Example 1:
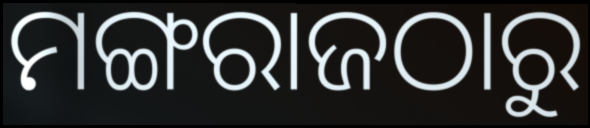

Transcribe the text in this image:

ମଙ୍ଗରାଜଠାରୁ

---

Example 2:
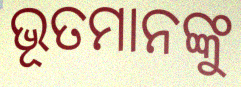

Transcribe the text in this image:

ଭୂତମାନଙ୍କୁ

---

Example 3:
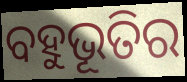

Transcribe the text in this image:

ବହୁଭୂତିର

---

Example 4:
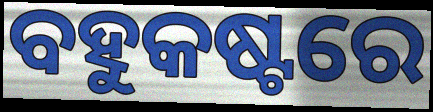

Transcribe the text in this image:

ବହୁକଷ୍ଟରେ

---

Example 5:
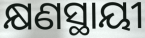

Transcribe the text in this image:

କ୍ଷଣସ୍ଥାୟୀ